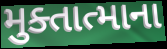
મુક્તાત્માના